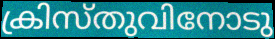
ക്രിസ്തുവിനോടു